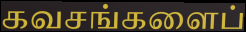
கவசங்களைப்